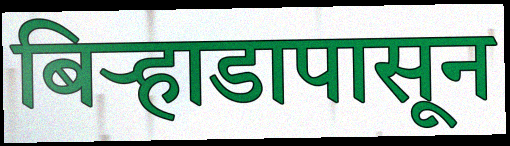
बिऱ्हाडापासून